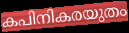
കപിനികരയുതം